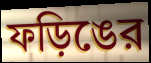
ফড়িঙের